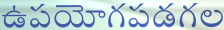
ఉపయోగపడగల